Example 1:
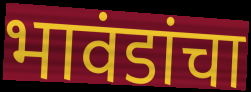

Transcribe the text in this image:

भावंडांचा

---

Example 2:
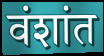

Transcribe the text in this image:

वंशांत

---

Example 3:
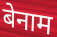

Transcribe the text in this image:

बेनाम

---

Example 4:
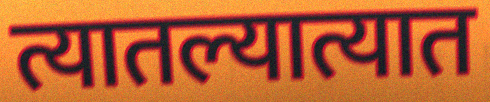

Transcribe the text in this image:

त्यातल्यात्यात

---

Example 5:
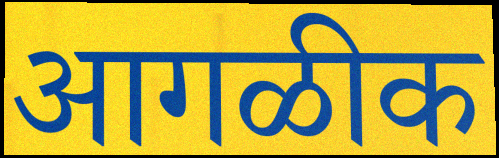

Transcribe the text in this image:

आगळीक